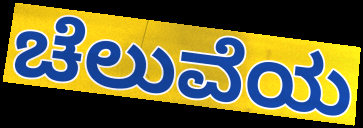
ಚೆಲುವೆಯ